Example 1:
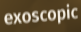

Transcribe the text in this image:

exoscopic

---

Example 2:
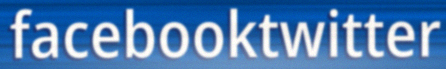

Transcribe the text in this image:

facebooktwitter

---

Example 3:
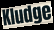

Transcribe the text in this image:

Kludge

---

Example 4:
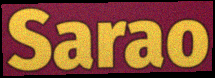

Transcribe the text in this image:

Sarao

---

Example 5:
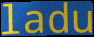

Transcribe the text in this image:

ladu